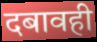
दबावही